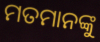
ମତମାନଙ୍କୁ